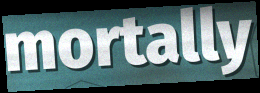
mortally